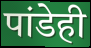
पांडेही